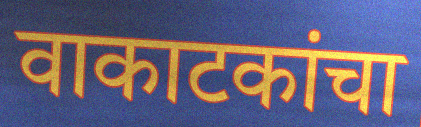
वाकाटकांचा